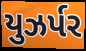
યુઝર્પર